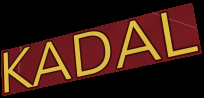
KADAL